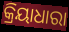
କ୍ରିୟାଧାରା